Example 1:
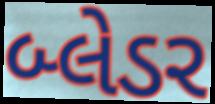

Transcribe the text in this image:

બ્લેડર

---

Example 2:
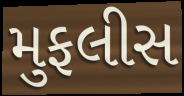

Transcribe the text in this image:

મુફલીસ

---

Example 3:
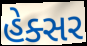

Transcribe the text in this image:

હેક્સર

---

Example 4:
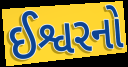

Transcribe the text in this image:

ઈશ્વરનો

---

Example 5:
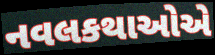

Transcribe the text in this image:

નવલકથાઓએ